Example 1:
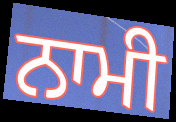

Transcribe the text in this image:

ਨਾਮੀ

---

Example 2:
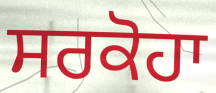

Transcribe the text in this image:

ਸਰਕੋਹਾ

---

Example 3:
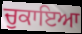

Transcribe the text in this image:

ਚੁਕਾਇਆ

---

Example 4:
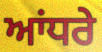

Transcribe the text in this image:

ਆਂਧਰੇ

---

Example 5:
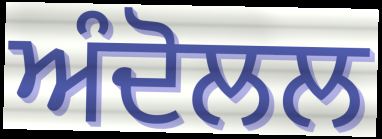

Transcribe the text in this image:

ਅੰਦੋਲਲ